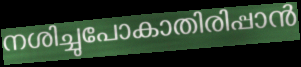
നശിച്ചുപോകാതിരിപ്പാൻ